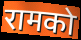
रामको